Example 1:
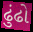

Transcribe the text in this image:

ઢુંઢો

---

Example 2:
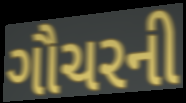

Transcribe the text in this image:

ગૌચરની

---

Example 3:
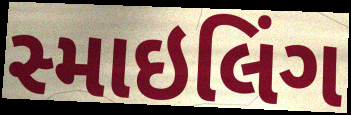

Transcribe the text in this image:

સ્માઇલિંગ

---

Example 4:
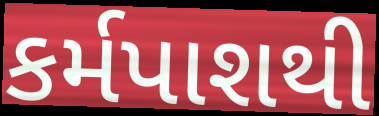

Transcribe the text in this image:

કર્મપાશથી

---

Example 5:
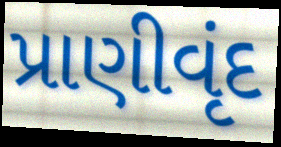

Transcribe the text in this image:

પ્રાણીવૃંદ